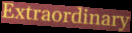
Extraordinary